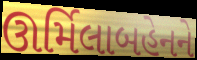
ઊર્મિલાબહેનને